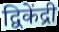
द्विकेंद्री